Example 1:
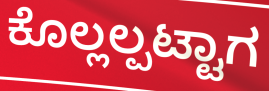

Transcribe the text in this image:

ಕೊಲ್ಲಲ್ಪಟ್ಟಾಗ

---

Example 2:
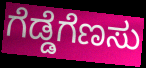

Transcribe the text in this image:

ಗೆಡ್ಡೆಗೆಣಸು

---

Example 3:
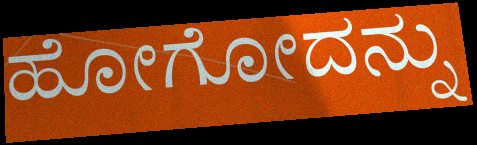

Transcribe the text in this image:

ಹೋಗೋದನ್ನು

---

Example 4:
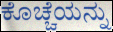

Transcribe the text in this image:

ಕೊಚ್ಚೆಯನ್ನು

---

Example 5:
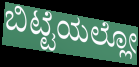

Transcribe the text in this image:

ಬಿಟ್ಟೆಯಲ್ಲೋ